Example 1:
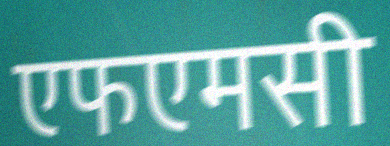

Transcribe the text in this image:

एफएमसी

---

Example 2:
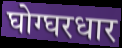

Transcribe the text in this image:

घोग्घरधार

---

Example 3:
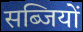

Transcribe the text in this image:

सब्जियों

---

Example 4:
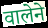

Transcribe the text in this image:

वालेने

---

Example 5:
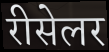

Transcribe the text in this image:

रीसेलर